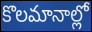
కొలమానాల్లో